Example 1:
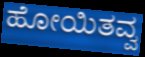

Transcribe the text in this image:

ಹೋಯಿತವ್ವ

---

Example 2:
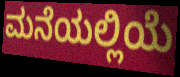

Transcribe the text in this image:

ಮನೆಯಲ್ಲಿಯೆ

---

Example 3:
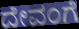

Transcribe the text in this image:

ದೇವಂಗೆ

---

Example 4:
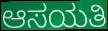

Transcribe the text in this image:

ಆಸಯತಿ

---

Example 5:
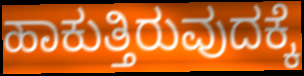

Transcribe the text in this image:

ಹಾಕುತ್ತಿರುವುದಕ್ಕೆ